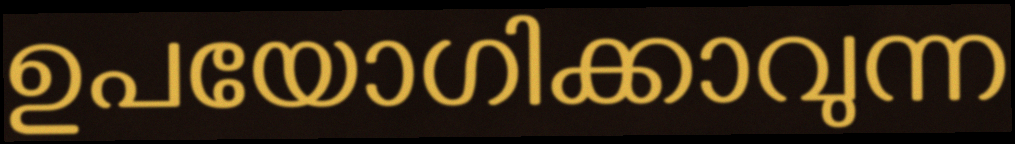
ഉപയോഗിക്കാവുന്ന